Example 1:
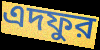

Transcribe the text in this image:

এদফুর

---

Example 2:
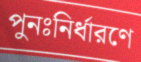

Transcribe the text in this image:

পুনঃনির্ধারণে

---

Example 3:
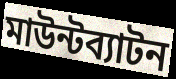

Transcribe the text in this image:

মাউন্টব্যাটন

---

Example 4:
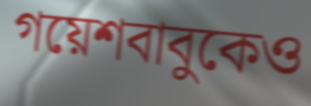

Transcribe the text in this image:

গয়েশবাবুকেও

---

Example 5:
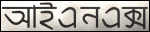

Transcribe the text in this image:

আইএনএক্স